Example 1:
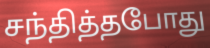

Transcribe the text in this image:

சந்தித்தபோது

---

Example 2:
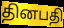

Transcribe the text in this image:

தினபதி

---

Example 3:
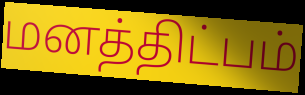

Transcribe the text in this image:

மனத்திட்பம்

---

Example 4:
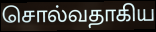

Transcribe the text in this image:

சொல்வதாகிய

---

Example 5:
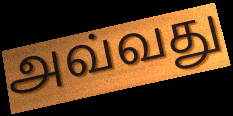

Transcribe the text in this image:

அவ்வது